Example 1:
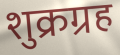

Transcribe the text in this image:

शुक्रग्रह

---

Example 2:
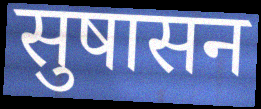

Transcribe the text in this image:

सुषासन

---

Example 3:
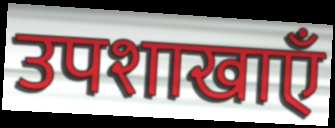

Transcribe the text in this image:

उपशाखाएँ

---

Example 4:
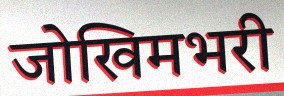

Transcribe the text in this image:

जोखिमभरी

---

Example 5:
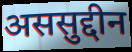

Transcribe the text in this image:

अससुद्दीन